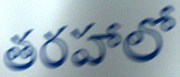
తరహాలో